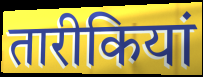
तारीकियां